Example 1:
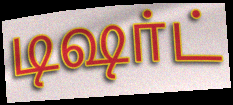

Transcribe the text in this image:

டிஷர்ட்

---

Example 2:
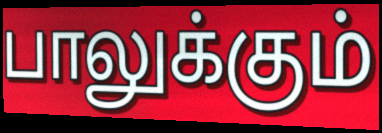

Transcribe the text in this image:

பாலுக்கும்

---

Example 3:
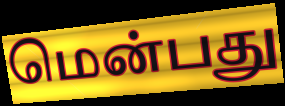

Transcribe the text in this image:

மென்பது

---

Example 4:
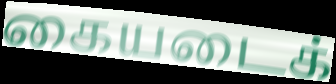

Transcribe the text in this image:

கையடைக்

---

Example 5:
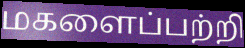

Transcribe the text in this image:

மகளைப்பற்றி